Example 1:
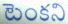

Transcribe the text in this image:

టెంకని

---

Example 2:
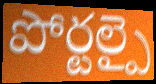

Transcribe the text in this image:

పోర్టల్పై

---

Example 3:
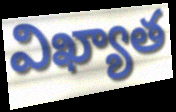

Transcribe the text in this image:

విఖ్యాత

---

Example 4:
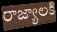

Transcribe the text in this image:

రాజ్యాలకి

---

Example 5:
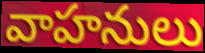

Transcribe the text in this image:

వాహనులు